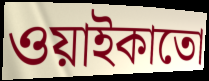
ওয়াইকাতো